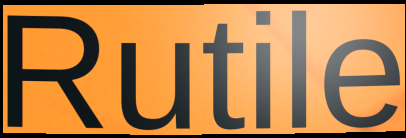
Rutile